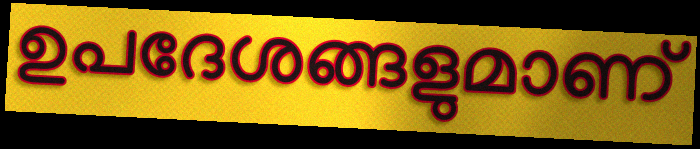
ഉപദേശങ്ങളുമാണ്